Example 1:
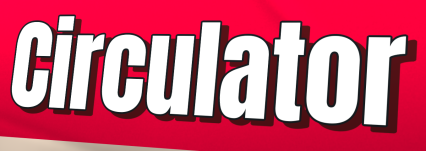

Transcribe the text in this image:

Circulator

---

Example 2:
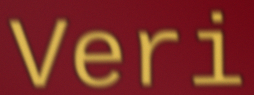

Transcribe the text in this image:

Veri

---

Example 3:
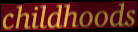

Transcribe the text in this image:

childhoods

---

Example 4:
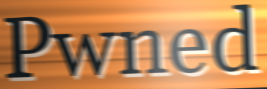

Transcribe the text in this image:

Pwned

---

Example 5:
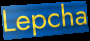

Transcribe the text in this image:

Lepcha